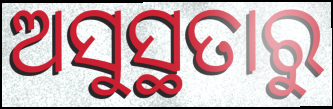
ଅସୁସ୍ଥତାରୁ